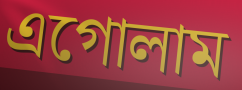
এগোলাম